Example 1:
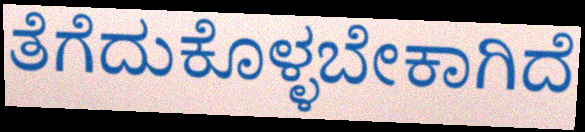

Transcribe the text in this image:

ತೆಗೆದುಕೊಳ್ಳಬೇಕಾಗಿದೆ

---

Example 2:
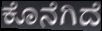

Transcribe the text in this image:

ಕೊನೆಗಿದೆ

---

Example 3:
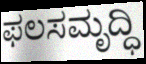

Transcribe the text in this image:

ಫಲಸಮೃದ್ಧಿ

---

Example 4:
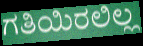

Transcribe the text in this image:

ಗತಿಯಿರಲಿಲ್ಲ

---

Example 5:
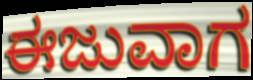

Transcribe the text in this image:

ಈಜುವಾಗ